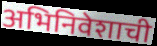
अभिनिवेशाची